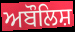
ਅਬੌਲਿਸ਼